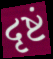
દૃષ્ટં